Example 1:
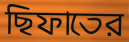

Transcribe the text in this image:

ছিফাতের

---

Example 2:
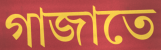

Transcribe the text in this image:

গাজাতে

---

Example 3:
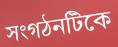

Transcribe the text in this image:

সংগঠনটিকে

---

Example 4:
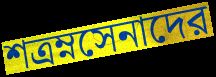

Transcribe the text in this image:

শত্রম্নসেনাদের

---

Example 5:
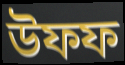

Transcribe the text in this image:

উফফ